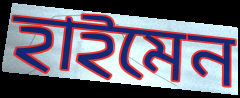
হাইমেন